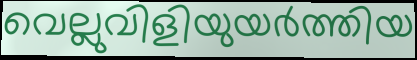
വെല്ലുവിളിയുയർത്തിയ